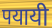
पयायी